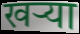
खऱ्या